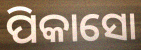
ପିକାସୋ